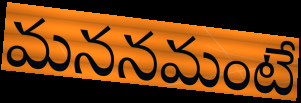
మననమంటే